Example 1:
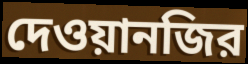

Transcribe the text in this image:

দেওয়ানজির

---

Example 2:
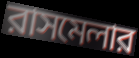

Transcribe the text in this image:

রাসমেলার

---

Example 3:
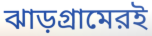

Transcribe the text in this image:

ঝাড়গ্রামেরই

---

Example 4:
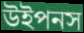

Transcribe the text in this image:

উইপনস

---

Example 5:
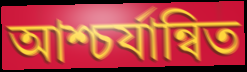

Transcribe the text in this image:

আশ্চর্যান্বিত